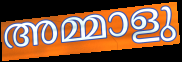
അമ്മാളു